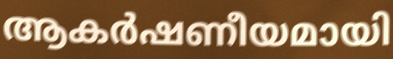
ആകർഷണീയമായി